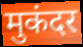
मुकंदर